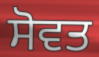
ਸੋਵਤ